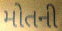
મોતની